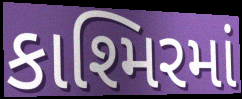
કાશ્મિરમાં